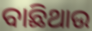
ବାଛିଥାଉ